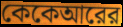
কেকেআরের